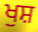
ਖੁਸ਼